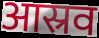
आस्रव